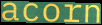
acorn